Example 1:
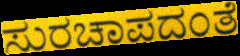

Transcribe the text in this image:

ಸುರಚಾಪದಂತೆ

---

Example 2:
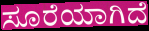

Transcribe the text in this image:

ಸೂರೆಯಾಗಿದೆ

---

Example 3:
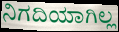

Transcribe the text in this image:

ನಿಗದಿಯಾಗಿಲ್ಲ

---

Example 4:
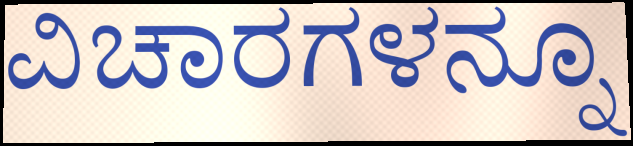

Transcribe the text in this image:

ವಿಚಾರಗಳನ್ನೂ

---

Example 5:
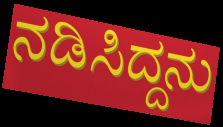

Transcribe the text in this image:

ನಡಿಸಿದ್ದನು